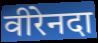
वीरेनदा